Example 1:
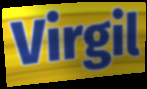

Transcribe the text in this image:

Virgil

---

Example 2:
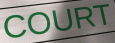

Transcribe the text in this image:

COURT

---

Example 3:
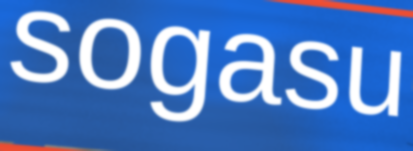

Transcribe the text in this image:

sogasu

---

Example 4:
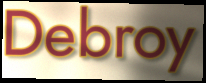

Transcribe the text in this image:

Debroy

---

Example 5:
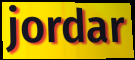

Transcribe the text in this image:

jordar